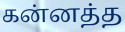
கன்னத்த